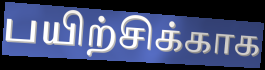
பயிற்சிக்காக